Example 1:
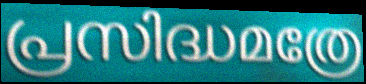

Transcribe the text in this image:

പ്രസിദ്ധമത്രേ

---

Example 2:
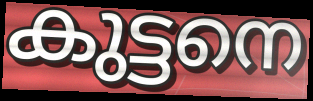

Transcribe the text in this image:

കുട്ടനെ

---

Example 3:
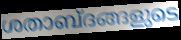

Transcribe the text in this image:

ശതാബ്ദങ്ങളുടെ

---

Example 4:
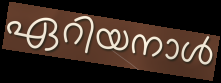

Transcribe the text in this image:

ഏറിയനാൾ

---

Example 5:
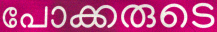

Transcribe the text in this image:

പോക്കരുടെ